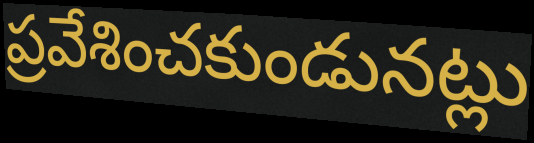
ప్రవేశించకుండునట్లు